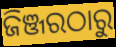
ଜିଞ୍ଜରଠାରୁ